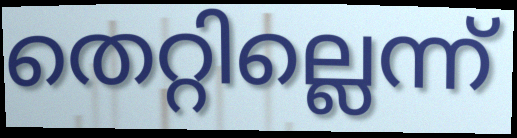
തെറ്റില്ലെന്ന്